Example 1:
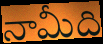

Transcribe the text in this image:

నామీది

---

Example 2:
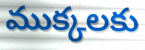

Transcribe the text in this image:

ముక్కలకు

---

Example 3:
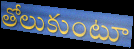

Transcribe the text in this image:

తోలుకుంటూ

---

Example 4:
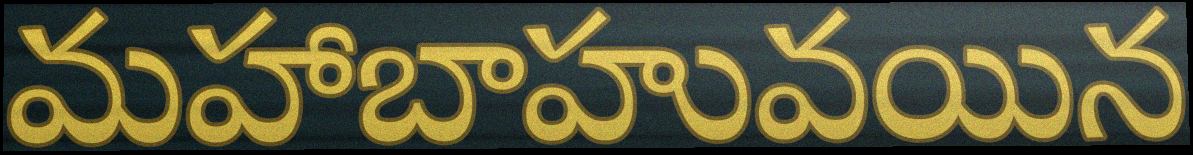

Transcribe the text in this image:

మహాబాహువయిన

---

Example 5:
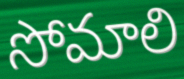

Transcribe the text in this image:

సోమాలి